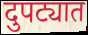
दुपट्यात